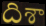
దిశా